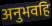
अनुभवहि